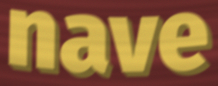
nave